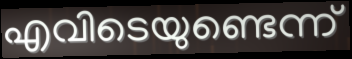
എവിടെയുണ്ടെന്ന്